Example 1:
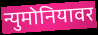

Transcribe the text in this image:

न्युमोनियावर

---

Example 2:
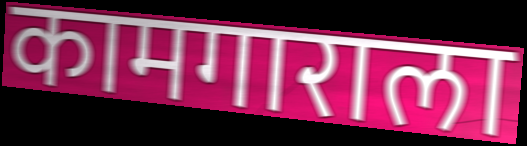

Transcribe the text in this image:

कामगाराला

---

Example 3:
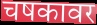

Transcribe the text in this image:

चषकावर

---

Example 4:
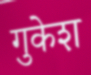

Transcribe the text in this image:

गुकेश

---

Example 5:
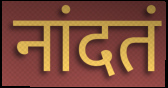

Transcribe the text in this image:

नांदतं